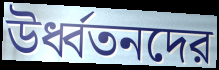
উর্ধ্বতনদের